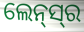
ଲେନ୍‌ସ୍‍ର